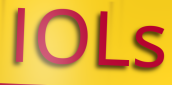
IOLs